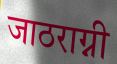
जाठराग्नी